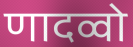
णादव्वो